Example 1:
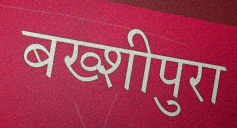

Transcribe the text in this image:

बख्शीपुरा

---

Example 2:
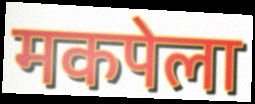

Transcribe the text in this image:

मकपेला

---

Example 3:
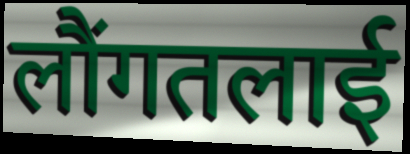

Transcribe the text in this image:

लौंगतलाई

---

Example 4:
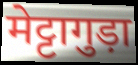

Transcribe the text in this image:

मेट्टागुड़ा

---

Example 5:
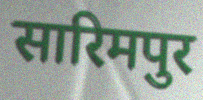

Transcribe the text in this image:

सारिमपुर